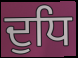
ਦੁਧਿ